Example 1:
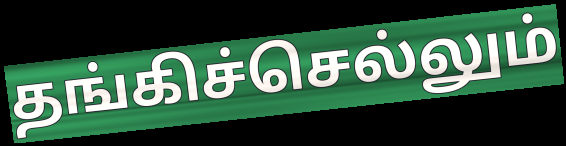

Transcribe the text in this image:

தங்கிச்செல்லும்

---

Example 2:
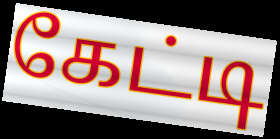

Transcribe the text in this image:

கேட்டி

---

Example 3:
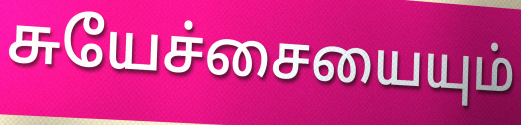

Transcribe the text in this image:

சுயேச்சையையும்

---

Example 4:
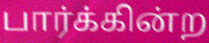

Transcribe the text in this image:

பார்க்கின்ற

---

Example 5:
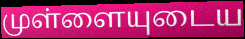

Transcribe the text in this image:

முள்ளையுடைய